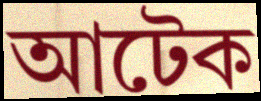
আটেক